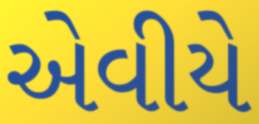
એવીયે